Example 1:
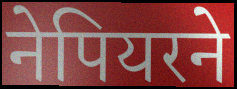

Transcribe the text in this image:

नेपियरने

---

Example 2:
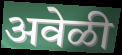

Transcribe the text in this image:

अवेळी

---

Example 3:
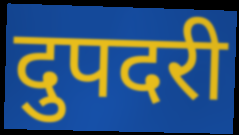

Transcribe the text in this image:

दुपदरी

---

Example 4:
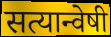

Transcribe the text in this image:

सत्यान्वेषी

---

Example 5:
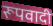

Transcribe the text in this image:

रूपवादी